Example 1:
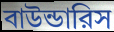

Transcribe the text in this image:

বাউন্ডারিস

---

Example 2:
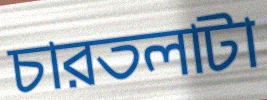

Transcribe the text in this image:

চারতলাটা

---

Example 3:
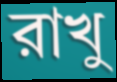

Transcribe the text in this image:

রাখু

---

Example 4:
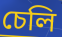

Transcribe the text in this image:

চেলি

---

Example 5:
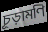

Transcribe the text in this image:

চূড়ামণি